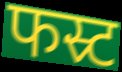
फस्र्ट